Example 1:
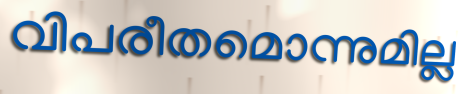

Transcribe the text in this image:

വിപരീതമൊന്നുമില്ല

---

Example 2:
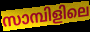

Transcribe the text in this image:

സാമ്പിളിലെ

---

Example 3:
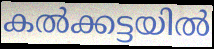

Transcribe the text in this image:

കൽക്കട്ടയിൽ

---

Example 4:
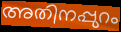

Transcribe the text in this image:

അതിനപ്പുറം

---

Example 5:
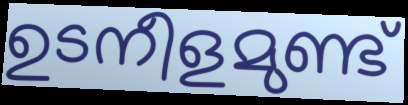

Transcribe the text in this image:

ഉടനീളമുണ്ട്